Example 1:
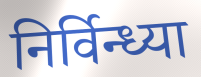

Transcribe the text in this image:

निर्विन्ध्या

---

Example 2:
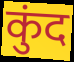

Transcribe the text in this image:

कुंद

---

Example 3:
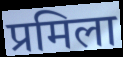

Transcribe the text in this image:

प्रमिला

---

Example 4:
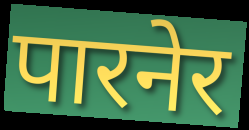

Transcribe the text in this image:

पारनेर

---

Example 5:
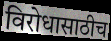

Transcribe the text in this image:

विरोधासाठीच